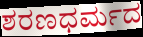
ಶರಣಧರ್ಮದ